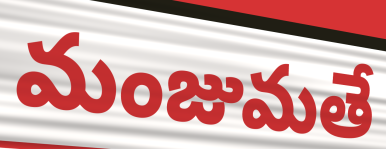
మంజుమతే